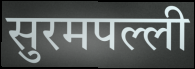
सुरमपल्ली